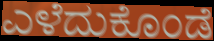
ಎಳೆದುಕೊಂಡೆ